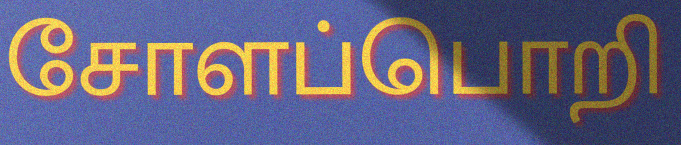
சோளப்பொறி